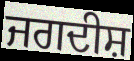
ਜਗਦੀਸ਼